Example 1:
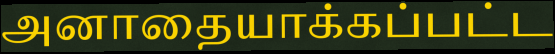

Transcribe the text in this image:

அனாதையாக்கப்பட்ட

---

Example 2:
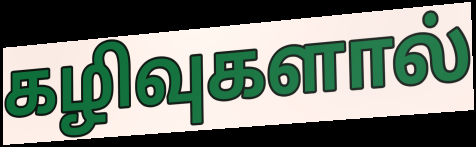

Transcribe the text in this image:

கழிவுகளால்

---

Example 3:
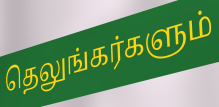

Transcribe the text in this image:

தெலுங்கர்களும்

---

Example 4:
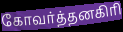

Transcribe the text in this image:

கோவர்த்தனகிரி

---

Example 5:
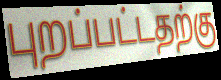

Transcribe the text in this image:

புறப்பட்டதற்கு